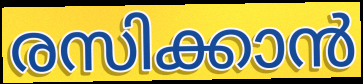
രസിക്കാൻ